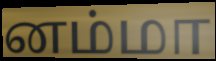
னம்மா